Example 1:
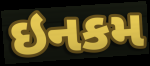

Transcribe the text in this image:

ઇનકમ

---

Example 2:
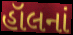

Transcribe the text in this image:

હૉલનાં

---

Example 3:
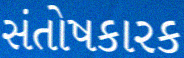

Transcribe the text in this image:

સંતોષકારક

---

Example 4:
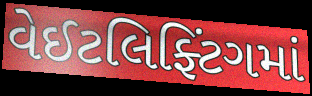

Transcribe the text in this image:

વેઈટલિફ્ટિંગમાં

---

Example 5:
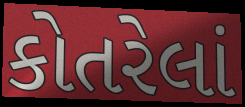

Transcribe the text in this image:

કોતરેલાં